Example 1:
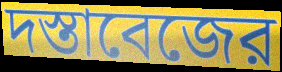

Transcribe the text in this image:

দস্তাবেজের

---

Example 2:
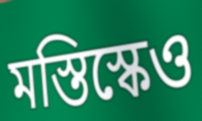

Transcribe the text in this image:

মস্তিস্কেও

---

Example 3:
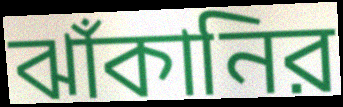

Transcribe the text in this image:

ঝাঁকানির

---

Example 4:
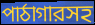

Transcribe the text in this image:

পাঠাগারসহ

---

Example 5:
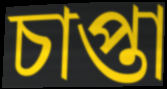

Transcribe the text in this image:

চাপ্তা